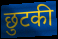
छुटकी